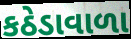
કઠેડાવાળા